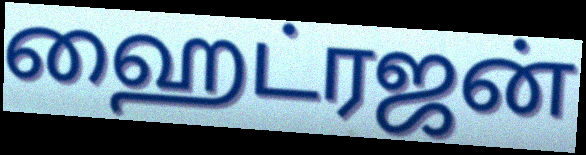
ஹைட்ரஜன்